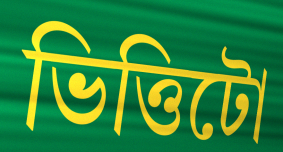
ভিত্তিটো